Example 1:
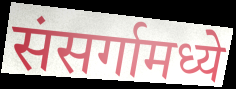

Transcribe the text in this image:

संसर्गामध्ये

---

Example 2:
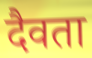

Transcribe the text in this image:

दैवता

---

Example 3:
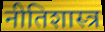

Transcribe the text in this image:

नीतिशास्त्र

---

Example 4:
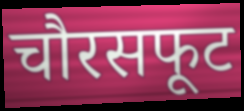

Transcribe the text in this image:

चौरसफूट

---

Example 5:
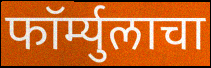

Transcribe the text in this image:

फॉर्म्युलाचा